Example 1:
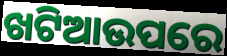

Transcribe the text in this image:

ଖଟିଆଉପରେ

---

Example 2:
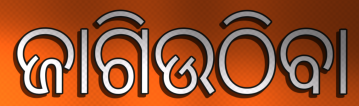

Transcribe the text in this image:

ଜାଗିଉଠିବା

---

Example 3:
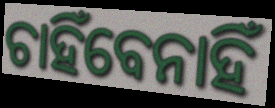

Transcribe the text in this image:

ଚାହିଁବେନାହିଁ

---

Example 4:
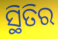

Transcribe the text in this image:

ସ୍ଥିତିର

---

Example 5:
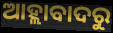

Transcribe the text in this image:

ଆହ୍ଲାବାଦରୁ